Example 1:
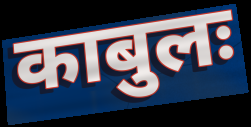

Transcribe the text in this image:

काबुलः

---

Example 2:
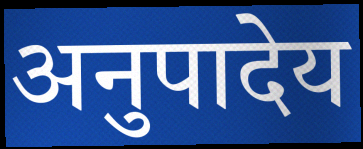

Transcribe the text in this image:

अनुपादेय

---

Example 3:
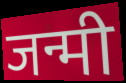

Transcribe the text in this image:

जन्मी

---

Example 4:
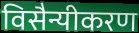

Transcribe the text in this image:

विसैन्यीकरण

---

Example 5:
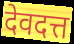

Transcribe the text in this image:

देवदत्त